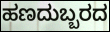
ಹಣದುಬ್ಬರದ